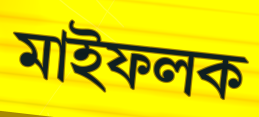
মাইফলক